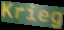
Krieg